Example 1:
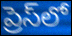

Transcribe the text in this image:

ప్రెస్‌లో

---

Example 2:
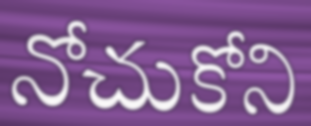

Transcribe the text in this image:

నోచుకోని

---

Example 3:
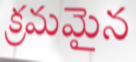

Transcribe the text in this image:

క్రమమైన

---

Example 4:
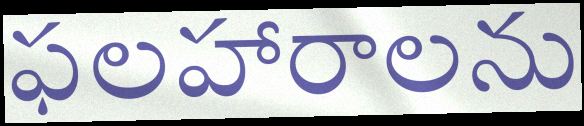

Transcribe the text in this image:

ఫలహారాలను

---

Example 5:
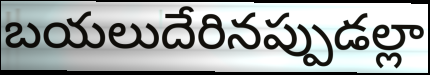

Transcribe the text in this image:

బయలుదేరినప్పుడల్లా